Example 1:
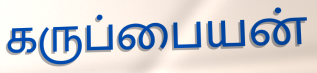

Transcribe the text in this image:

கருப்பையன்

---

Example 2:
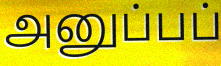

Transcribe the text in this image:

அனுப்பப்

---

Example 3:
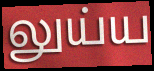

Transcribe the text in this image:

லுய்ய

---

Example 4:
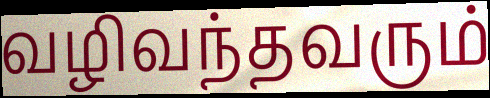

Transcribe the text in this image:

வழிவந்தவரும்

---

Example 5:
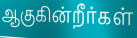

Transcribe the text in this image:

ஆகுகின்றீர்கள்